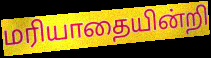
மரியாதையின்றி